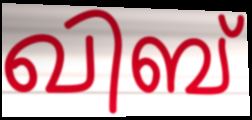
ഖിബ്